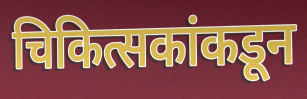
चिकित्सकांकडून